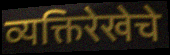
व्यक्तिरेखेचे